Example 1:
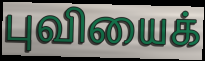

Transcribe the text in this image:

புவியைக்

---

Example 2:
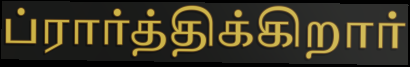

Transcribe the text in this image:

ப்ரார்த்திக்கிறார்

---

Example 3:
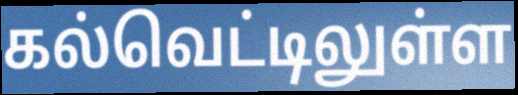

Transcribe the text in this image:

கல்வெட்டிலுள்ள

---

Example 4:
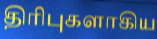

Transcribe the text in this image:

திரிபுகளாகிய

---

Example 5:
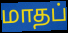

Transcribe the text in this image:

மாதப்